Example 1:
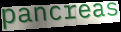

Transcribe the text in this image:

pancreas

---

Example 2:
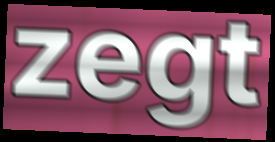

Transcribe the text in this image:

zegt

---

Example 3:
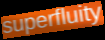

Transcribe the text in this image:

superfluity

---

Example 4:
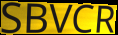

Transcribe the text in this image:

SBVCR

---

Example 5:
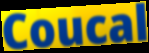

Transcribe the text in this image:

Coucal